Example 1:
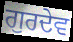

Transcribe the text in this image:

ਗੁਰਦੇਵ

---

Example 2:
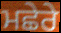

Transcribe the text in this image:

ਮਛੇਰੇ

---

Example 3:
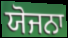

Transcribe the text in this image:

ਯੋਜਨਾ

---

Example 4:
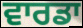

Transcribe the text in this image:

ਵਾਰਡਾ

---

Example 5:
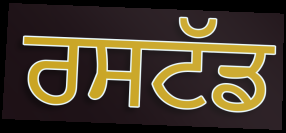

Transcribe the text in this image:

ਰਸਟੱਡ